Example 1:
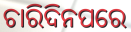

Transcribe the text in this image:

ଚାରିଦିନପରେ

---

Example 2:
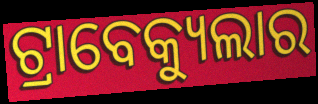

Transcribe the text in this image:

ଟ୍ରାବେକ୍ୟୁଲାର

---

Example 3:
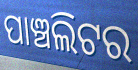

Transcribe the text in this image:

ପାଞ୍ଚଲିଟର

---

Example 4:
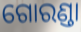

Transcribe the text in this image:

ଗୋରଣ୍ଡା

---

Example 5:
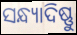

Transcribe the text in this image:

ସନ୍ଧ୍ୟାଦିଷ୍ଣୁ